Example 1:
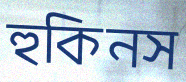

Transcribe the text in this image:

হুকিনস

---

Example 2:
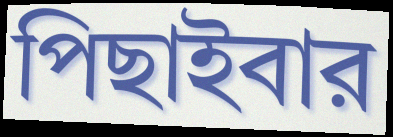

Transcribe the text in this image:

পিছাইবার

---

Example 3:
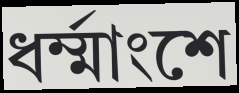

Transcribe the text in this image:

ধর্ম্মাংশে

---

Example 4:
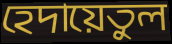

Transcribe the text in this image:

হেদায়েতুল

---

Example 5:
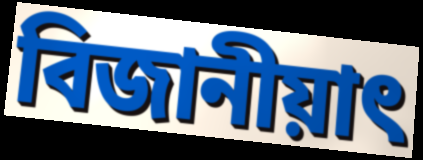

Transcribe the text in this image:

বিজানীয়াৎ